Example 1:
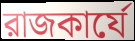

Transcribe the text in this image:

রাজকার্যে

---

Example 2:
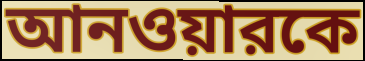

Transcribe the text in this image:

আনওয়ারকে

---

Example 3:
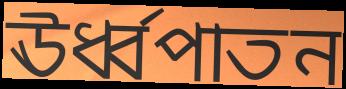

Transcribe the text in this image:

ঊর্ধ্বপাতন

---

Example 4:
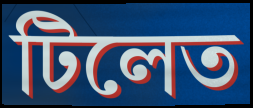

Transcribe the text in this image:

টিলেত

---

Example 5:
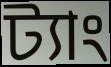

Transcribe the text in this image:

ট্যাং